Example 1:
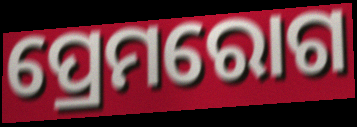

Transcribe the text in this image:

ପ୍ରେମରୋଗ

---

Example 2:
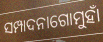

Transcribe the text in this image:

ସମ୍ପାଦନାଗୋମୁହାଁ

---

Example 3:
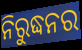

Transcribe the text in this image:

ନିରୁଦ୍ଧନର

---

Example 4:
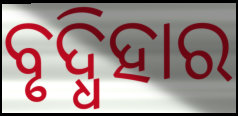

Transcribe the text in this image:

ବୃଦ୍ଧିହାର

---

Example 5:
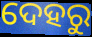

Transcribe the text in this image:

ଦେହରୁ